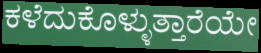
ಕಳೆದುಕೊಳ್ಳುತ್ತಾರೆಯೇ